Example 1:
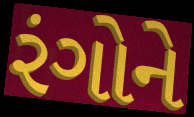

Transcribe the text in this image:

રંગોને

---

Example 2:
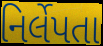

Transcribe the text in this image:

નિર્લેપતા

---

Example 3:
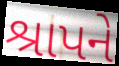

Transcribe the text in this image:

શ્રાપને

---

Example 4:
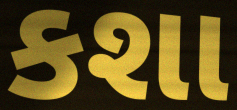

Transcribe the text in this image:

કશા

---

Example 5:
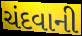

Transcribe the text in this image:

ચંદવાની